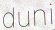
duni